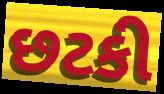
છટકી